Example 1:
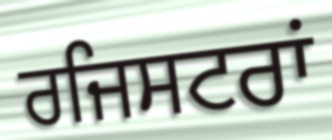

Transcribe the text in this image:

ਰਜਿਸਟਰਾਂ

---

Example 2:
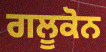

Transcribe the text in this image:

ਗਲੂਕੋਨ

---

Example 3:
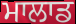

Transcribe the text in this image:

ਮਾਲਾਡ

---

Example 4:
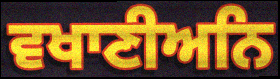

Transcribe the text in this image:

ਵਖਾਣੀਅਨਿ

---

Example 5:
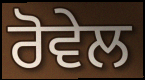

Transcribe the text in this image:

ਰੋਵੇਲ